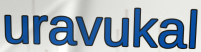
uravukal